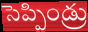
సెప్పిండ్రు